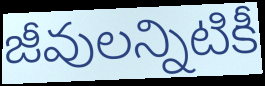
జీవులన్నిటికీ